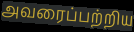
அவரைப்பற்றிய